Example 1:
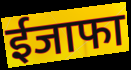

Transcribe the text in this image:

ईजाफा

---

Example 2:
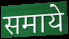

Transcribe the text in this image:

समाये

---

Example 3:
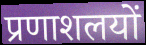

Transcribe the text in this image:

प्रणाशलयों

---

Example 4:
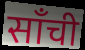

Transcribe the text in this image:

साँची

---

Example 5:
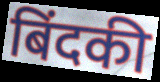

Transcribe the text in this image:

बिंदकी